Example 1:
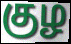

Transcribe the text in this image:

குழ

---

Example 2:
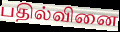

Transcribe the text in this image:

பதில்வினை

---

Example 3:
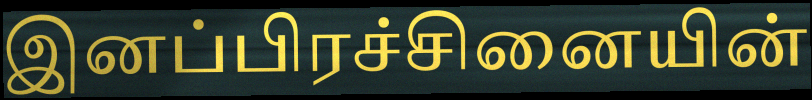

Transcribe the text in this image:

இனப்பிரச்சினையின்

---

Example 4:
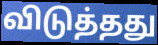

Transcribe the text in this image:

விடுத்தது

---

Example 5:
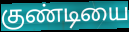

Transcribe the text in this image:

குண்டியை